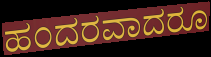
ಹಂದರವಾದರೂ